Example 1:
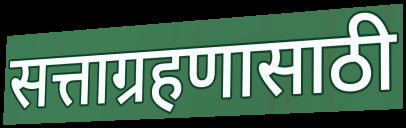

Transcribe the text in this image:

सत्ताग्रहणासाठी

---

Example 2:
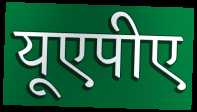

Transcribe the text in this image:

यूएपीए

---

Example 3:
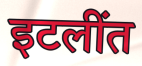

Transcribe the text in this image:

इटलींत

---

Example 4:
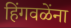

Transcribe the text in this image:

हिंगवळेंना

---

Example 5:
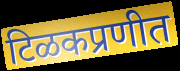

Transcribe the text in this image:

टिळकप्रणीत